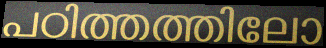
പഠിത്തത്തിലോ